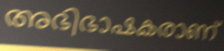
അഭിഭാഷകരാണ്